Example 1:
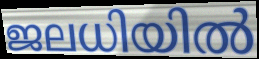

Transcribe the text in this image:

ജലധിയിൽ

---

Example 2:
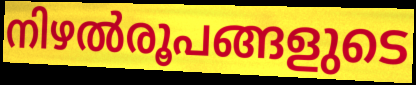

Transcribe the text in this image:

നിഴൽരൂപങ്ങളുടെ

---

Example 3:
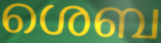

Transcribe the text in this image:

ശെബ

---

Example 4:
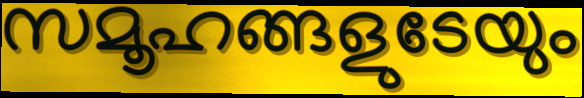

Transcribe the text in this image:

സമൂഹങ്ങളുടേയും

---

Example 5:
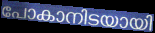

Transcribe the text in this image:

പോകാനിടയായി